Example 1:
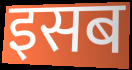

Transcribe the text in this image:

इसब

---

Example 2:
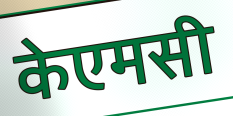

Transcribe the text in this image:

केएमसी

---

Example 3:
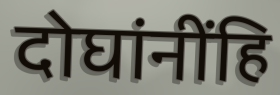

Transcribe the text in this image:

दोघांनींहि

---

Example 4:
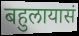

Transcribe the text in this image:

बहुलायासं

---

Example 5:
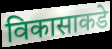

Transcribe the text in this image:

विकासाकडे